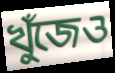
খুঁজেও